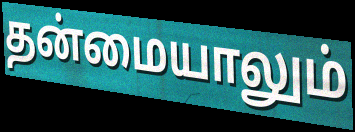
தன்மையாலும்